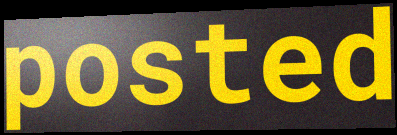
posted